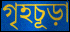
গৃহচূড়া